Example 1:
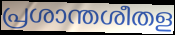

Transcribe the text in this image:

പ്രശാന്തശീതള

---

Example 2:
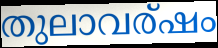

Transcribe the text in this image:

തുലാവര്ഷം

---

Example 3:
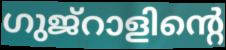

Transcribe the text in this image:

ഗുജ്റാളിന്റെ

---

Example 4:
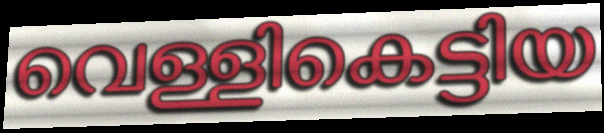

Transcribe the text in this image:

വെള്ളികെട്ടിയ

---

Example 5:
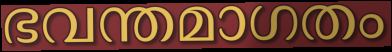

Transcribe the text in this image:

ഭവന്തമാഗതം